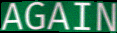
AGAIN